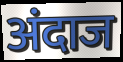
अंदाज